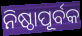
ନିଷ୍ଠାପୂର୍ବକ